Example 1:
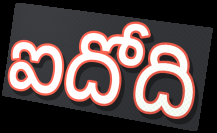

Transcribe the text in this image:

ఐదోది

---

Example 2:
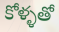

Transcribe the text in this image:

కోళ్ళతో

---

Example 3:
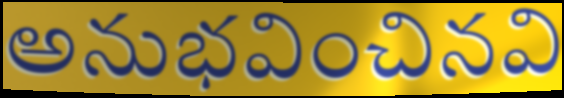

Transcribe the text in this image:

అనుభవించినవి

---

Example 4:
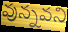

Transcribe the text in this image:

వున్నవని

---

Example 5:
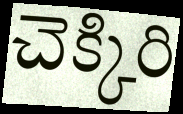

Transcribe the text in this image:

చెక్కిరి